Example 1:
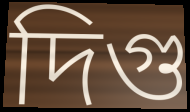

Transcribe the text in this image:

দিগু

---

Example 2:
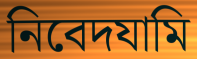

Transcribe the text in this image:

নিবেদযামি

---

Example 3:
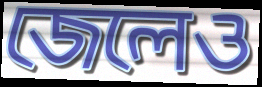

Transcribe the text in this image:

জেলেও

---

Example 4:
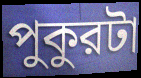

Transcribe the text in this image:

পুকুরটা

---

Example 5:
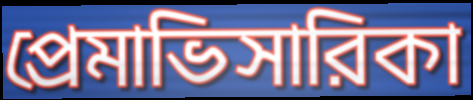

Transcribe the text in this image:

প্রেমাভিসারিকা